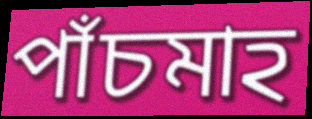
পাঁচমাহ